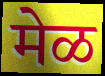
मेळ